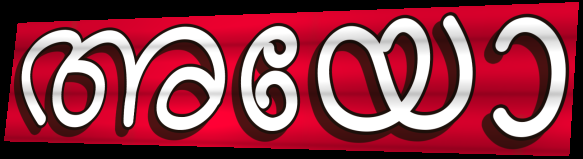
അയോ